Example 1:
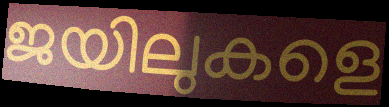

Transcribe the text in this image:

ജയിലുകളെ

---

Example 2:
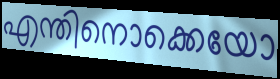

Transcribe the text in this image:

എന്തിനൊക്കെയോ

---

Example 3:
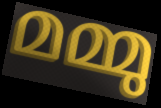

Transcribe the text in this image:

മമ്മു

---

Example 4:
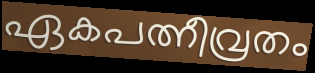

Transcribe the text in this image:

ഏകപത്നീവ്രതം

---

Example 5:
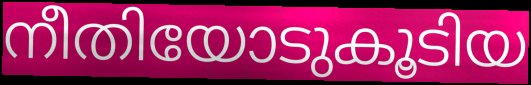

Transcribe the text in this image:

നീതിയോടുകൂടിയ